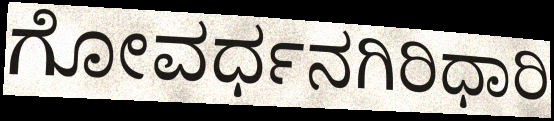
ಗೋವರ್ಧನಗಿರಿಧಾರಿ